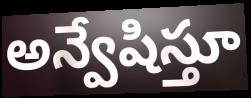
అన్వేషిస్తూ